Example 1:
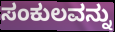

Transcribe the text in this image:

ಸಂಕುಲವನ್ನು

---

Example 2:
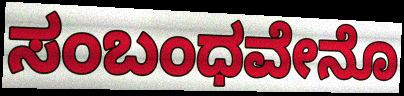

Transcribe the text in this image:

ಸಂಬಂಧವೇನೊ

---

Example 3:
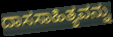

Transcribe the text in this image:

ದಾಸಸಾಹಿತ್ಯವನ್ನು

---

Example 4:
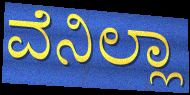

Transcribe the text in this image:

ವೆನಿಲ್ಲಾ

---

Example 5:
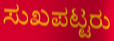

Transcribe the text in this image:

ಸುಖಪಟ್ಟರು